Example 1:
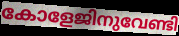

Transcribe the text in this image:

കോളേജിനുവേണ്ടി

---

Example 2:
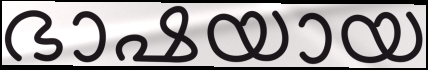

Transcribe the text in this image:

ഭാഷയായ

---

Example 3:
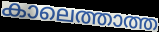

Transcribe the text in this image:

കാലെത്താത്ത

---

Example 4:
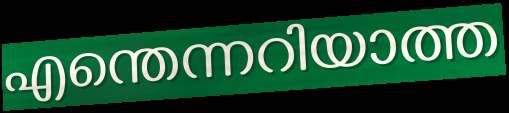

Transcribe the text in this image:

എന്തെന്നറിയാത്ത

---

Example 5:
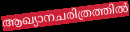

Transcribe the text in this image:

ആഖ്യാനചരിത്രത്തിൽ